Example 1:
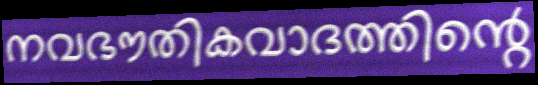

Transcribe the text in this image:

നവഭൗതികവാദത്തിന്റെ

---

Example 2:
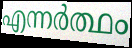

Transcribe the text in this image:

എന്നർത്ഥം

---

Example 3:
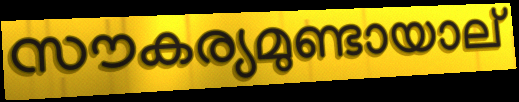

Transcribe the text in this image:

സൗകര്യമുണ്ടായാല്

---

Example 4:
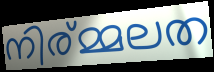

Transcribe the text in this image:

നിര്മ്മലത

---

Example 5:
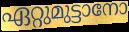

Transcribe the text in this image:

ഏറ്റുമുട്ടാനോ